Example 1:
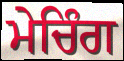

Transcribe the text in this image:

ਮੇਚਿੰਗ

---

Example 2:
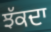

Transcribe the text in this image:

ਝੱਕਦਾ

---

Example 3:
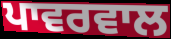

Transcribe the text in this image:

ਪਾਵਰਵਾਲ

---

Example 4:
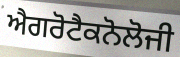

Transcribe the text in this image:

ਐਗਰੋਟੈਕਨੋਲੋਜੀ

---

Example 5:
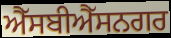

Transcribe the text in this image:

ਐੱਸਬੀਐੱਸਨਗਰ